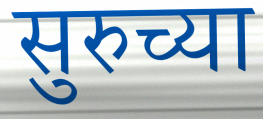
सुरुच्या